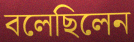
বলেছিলেন